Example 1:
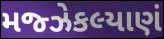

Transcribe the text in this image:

મજ્ઝેકલ્યાણં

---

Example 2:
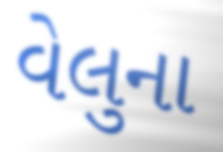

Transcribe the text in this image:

વેલુના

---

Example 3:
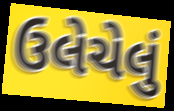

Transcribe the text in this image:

ઉલેચેલું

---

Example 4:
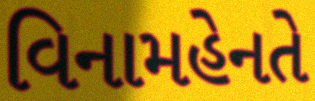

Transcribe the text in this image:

વિનામહેનતે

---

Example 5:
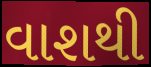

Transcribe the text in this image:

વાશથી